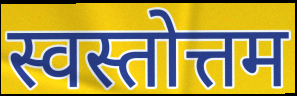
स्वस्तोत्तम